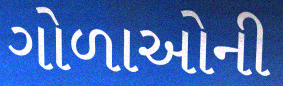
ગોળાઓની